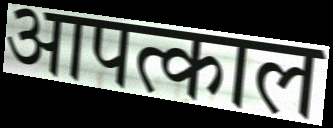
आपत्काल